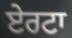
ਏਰਟਾ